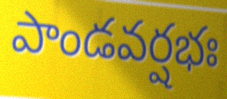
పాండవర్షభః